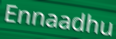
Ennaadhu